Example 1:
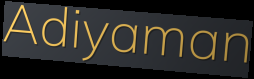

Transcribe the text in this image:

Adiyaman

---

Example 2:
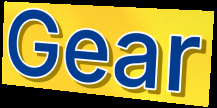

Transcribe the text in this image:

Gear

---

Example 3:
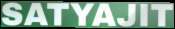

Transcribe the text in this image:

SATYAJIT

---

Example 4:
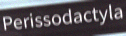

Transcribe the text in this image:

Perissodactyla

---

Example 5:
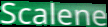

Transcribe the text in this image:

Scalene